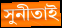
সুনীতাই